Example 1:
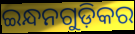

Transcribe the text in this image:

ଇନ୍ଧନଗୁଡ଼ିକର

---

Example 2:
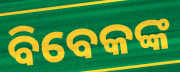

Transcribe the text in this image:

ବିବେକଙ୍କ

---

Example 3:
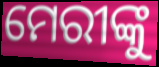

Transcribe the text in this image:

ମେରୀଙ୍କୁ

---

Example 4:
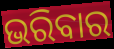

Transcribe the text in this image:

ଭରିବାର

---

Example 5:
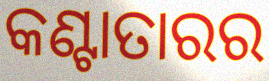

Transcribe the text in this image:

କଣ୍ଟାତାରର